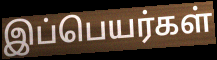
இப்பெயர்கள்